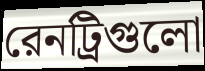
রেনট্রিগুলো